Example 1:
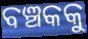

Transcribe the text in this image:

ବଞ୍ଚକକୁ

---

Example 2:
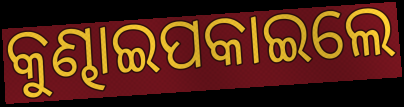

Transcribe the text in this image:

କୁଣ୍ଢାଇପକାଇଲେ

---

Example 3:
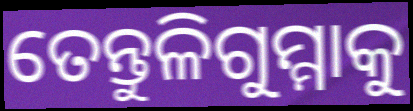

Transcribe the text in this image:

ତେନ୍ତୁଳିଗୁମ୍ମାକୁ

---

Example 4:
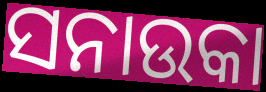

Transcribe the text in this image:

ସନାଉକା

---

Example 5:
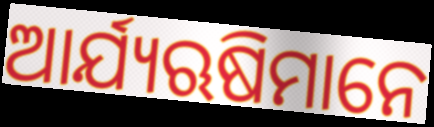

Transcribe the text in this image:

ଆର୍ଯ୍ୟଋଷିମାନେ